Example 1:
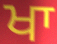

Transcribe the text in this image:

ਖਾ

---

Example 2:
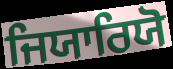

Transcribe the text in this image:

ਜਿਯਾਰਿਯੋ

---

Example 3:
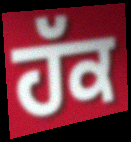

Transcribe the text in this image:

ਹੱਕ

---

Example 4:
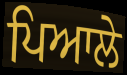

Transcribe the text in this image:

ਪਿਆਲੇ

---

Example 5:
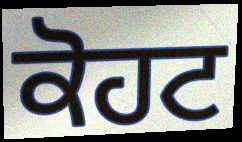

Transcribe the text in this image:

ਕੋਹਟ